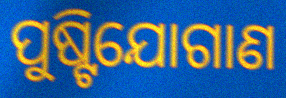
ପୁଷ୍ଟିଯୋଗାଣ